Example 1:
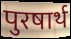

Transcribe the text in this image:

पुरषार्थ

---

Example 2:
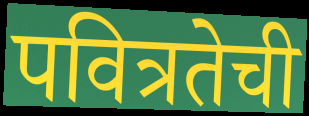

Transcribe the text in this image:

पवित्रतेची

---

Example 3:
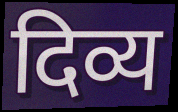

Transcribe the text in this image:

दिव्य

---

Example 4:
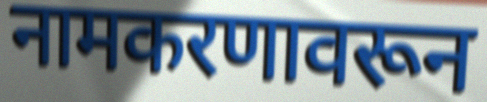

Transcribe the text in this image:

नामकरणावरून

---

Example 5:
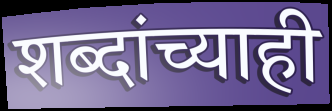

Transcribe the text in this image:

शब्दांच्याही